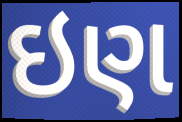
ઇણ